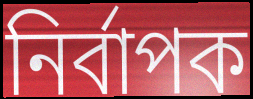
নির্বাপক